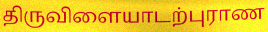
திருவிளையாடற்புராண